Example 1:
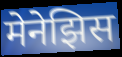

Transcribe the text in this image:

मेनेझिस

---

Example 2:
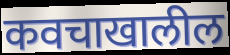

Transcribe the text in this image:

कवचाखालील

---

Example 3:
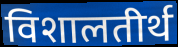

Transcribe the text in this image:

विशालतीर्थ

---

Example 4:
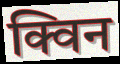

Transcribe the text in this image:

क्विन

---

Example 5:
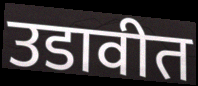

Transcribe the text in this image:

उडावीत